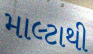
માલ્ટાથી